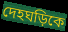
দেহঘড়িকে